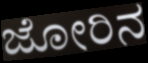
ಜೋರಿನ